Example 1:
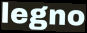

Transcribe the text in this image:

legno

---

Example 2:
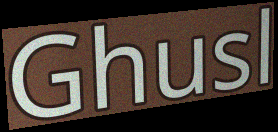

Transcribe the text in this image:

Ghusl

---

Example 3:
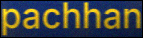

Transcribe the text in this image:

pachhan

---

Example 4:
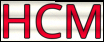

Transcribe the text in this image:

HCM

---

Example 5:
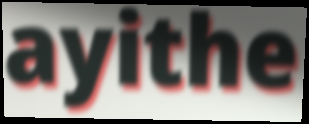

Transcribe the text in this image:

ayithe